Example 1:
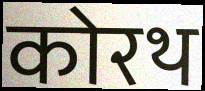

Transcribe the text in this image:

कोरथ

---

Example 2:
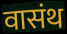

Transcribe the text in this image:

वासंथ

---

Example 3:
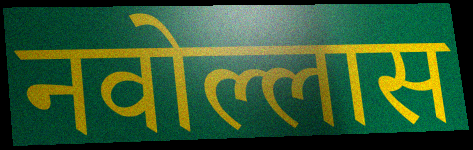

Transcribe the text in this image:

नवोल्लास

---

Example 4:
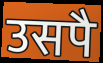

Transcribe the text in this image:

उसपै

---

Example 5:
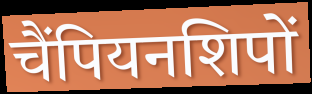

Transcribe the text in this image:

चैंपियनशिपों